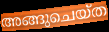
അങ്ങുചെയ്ത